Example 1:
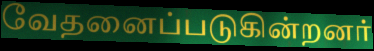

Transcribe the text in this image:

வேதனைப்படுகின்றனர்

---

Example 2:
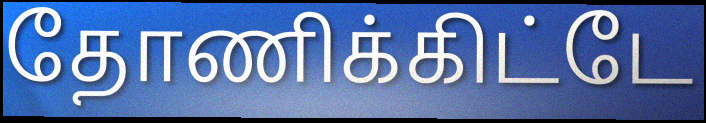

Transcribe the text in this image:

தோணிக்கிட்டே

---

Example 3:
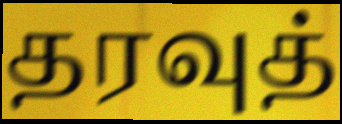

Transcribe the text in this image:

தரவுத்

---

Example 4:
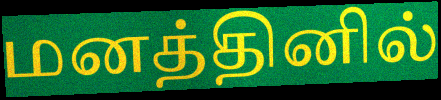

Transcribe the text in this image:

மனத்தினில்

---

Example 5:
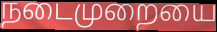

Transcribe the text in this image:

நடைமுறையை